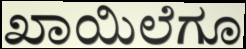
ಖಾಯಿಲೆಗೂ